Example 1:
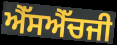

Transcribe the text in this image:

ਐੱਸਐੱਚਜੀ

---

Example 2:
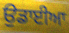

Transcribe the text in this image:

ਉਡਾਈਆ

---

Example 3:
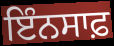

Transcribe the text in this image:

ਇੰਨਸਾਫ਼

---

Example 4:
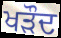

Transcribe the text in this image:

ਖੜੌਦ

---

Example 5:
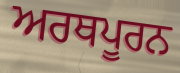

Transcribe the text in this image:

ਅਰਥਪੂਰਨ